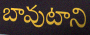
బావుటాని